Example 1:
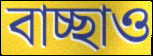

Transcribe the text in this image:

বাচ্ছাও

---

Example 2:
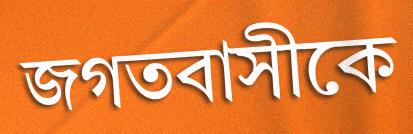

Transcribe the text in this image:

জগতবাসীকে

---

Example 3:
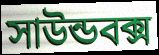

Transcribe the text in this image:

সাউন্ডবক্স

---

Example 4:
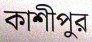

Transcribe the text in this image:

কাশীপুর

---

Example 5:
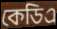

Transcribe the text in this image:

কেডিএ